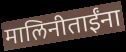
मालिनीताईंना